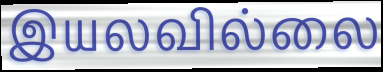
இயலவில்லை